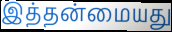
இத்தன்மையது